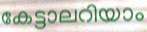
കേട്ടാലറിയാം